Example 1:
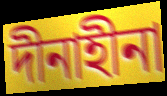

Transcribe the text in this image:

দীনাহীনা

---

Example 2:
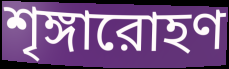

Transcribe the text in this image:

শৃঙ্গারোহণ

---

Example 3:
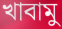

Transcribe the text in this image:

খাবামু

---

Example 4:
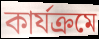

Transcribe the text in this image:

কার্যক্রমে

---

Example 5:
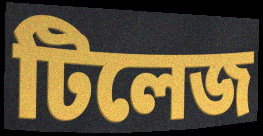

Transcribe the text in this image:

টিলেজ